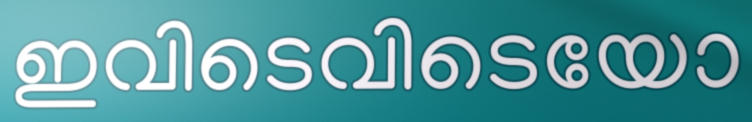
ഇവിടെവിടെയോ